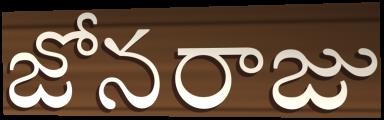
జోనరాజు